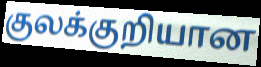
குலக்குறியான